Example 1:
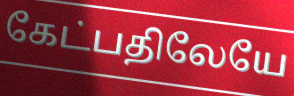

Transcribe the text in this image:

கேட்பதிலேயே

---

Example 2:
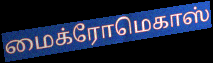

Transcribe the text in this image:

மைக்ரோமெகாஸ்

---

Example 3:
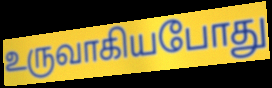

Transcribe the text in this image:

உருவாகியபோது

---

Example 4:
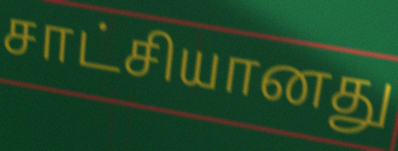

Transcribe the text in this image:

சாட்சியானது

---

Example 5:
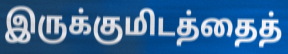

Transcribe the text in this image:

இருக்குமிடத்தைத்